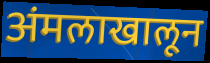
अंमलाखालून